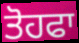
ਤੋਹਫਾ